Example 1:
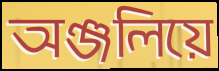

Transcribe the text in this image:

অঞ্জলিয়ে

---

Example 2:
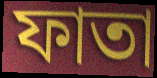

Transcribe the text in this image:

ফাতা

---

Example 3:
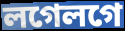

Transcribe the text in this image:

লগেলগে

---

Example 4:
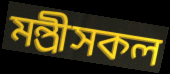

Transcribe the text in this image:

মন্ত্ৰীসকল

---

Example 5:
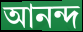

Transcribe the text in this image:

আনন্দ